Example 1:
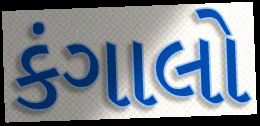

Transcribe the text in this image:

કંગાલો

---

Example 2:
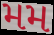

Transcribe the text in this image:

મમ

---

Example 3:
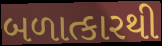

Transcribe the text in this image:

બળાત્કારથી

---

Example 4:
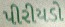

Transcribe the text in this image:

પીરીયડો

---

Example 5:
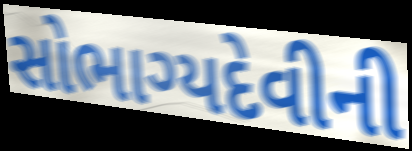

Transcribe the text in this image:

સોભાગ્યદેવીની